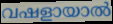
വഷളായാൽ